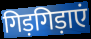
गिड़गिड़ाएं